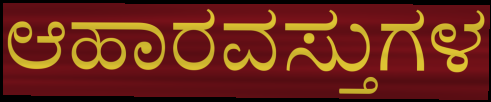
ಆಹಾರವಸ್ತುಗಳ